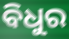
ବିଧୁର